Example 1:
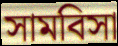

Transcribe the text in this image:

সামবিসা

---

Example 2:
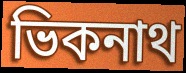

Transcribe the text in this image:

ভিকনাথ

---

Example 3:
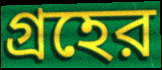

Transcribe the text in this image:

গ্রহের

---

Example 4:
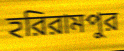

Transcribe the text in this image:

হরিরামপুর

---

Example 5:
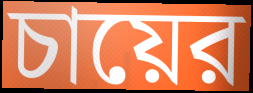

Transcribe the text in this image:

চায়ের